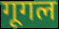
गूगल